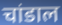
चांडाल